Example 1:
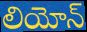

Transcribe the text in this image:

లియోన్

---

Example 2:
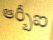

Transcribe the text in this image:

ఆర్బీఐ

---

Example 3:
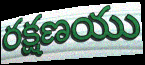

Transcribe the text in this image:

రక్షణయు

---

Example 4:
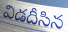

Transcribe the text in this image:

విడదీసిన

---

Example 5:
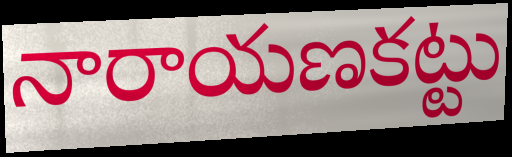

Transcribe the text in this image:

నారాయణకట్టు